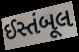
ઈસ્તંબૂલ